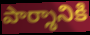
పార్శానికి